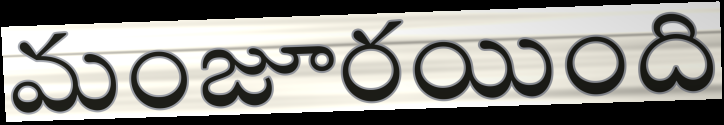
మంజూరయింది